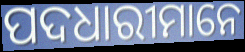
ପଦଧାରୀମାନେ